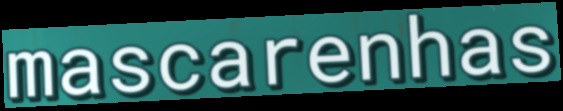
mascarenhas